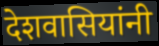
देशवासियांनी